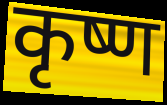
कृष्ण